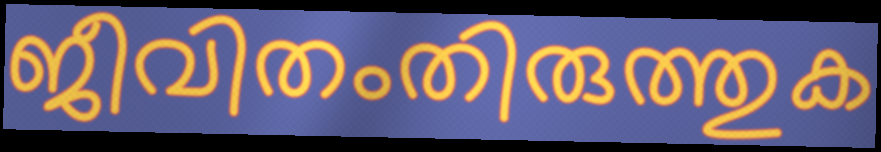
ജീവിതംതിരുത്തുക